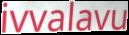
ivvalavu